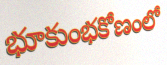
భూకుంభకోణంలో